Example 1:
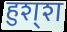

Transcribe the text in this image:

हुश्श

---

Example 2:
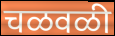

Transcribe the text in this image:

चळवळी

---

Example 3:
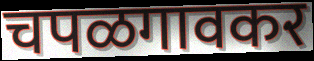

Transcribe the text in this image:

चपळगावकर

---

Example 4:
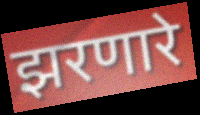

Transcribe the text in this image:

झरणारे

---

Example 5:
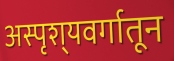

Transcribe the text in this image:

अस्पृश्यवर्गातून